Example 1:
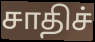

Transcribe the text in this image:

சாதிச்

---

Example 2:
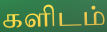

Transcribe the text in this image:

களிடம்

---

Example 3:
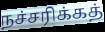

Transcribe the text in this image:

நச்சரிக்கத்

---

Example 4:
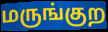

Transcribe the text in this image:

மருங்குற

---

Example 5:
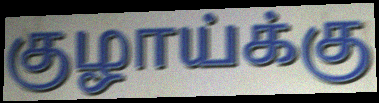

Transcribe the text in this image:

குழாய்க்கு